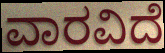
ವಾರವಿದೆ